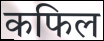
कफिल